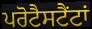
ਪਰੋਟੈਸਟੈਂਟਾਂ